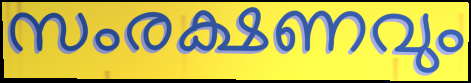
സംരക്ഷണവും